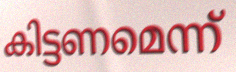
കിട്ടണമെന്ന്